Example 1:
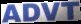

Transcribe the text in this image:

ADVT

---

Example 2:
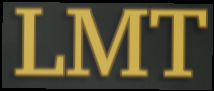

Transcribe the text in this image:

LMT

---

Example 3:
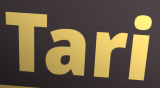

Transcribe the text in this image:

Tari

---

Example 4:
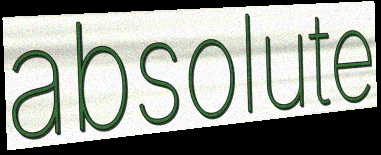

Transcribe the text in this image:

absolute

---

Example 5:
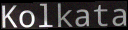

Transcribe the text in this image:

Kolkata